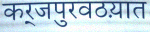
कर्जपुरवठय़ात